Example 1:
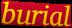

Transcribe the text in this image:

burial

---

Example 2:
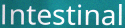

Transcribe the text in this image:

Intestinal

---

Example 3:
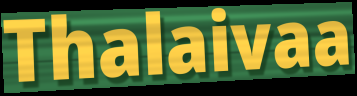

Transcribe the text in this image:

Thalaivaa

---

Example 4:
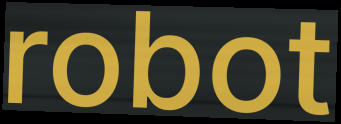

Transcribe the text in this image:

robot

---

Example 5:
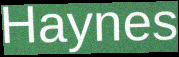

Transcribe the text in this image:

Haynes